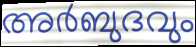
അർബുദവും